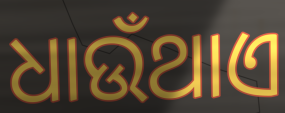
ଧାଉଁଥାଏ